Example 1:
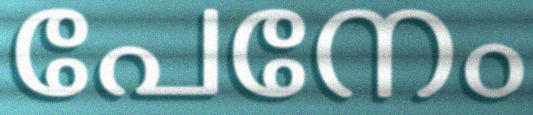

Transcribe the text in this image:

പേനേം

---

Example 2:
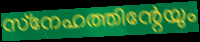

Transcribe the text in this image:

സ്‌നേഹത്തിന്റേയും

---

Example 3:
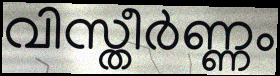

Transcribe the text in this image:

വിസ്തീർണ്ണം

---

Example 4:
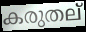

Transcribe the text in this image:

കരുതല്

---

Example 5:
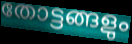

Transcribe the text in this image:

തോട്ടങ്ങളും